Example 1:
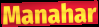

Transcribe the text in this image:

Manahar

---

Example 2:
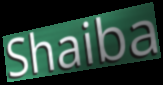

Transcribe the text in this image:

Shaiba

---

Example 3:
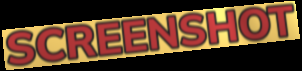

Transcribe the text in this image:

SCREENSHOT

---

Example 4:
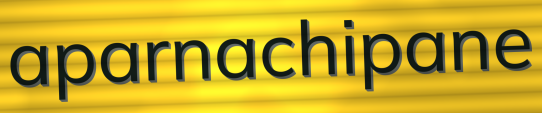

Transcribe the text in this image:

aparnachipane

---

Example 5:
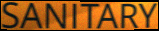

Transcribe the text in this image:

SANITARY